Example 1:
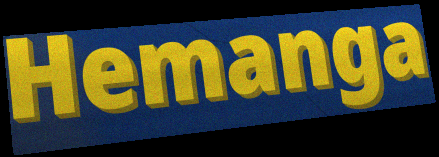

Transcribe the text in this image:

Hemanga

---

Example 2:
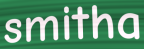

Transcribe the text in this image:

smitha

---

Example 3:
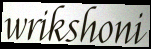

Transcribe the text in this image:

wrikshoni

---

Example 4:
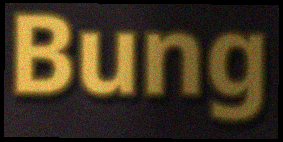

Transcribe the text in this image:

Bung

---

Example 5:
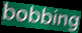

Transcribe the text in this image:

bobbing